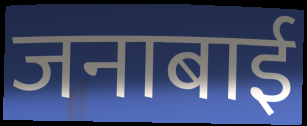
जनाबाई